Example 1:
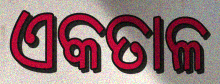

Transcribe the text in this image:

ଏକତାଳ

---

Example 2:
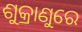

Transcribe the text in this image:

ଶୁକ୍ରାଣୁରେ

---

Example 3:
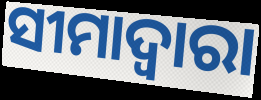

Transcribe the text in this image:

ସୀମାଦ୍ଵାରା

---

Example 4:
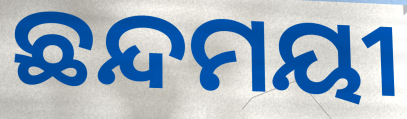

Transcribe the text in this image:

ଛନ୍ଦମୟୀ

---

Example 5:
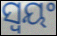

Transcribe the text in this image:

ସ୍ଵୟଂ